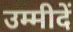
उम्मीदें